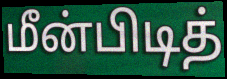
மீன்பிடித்